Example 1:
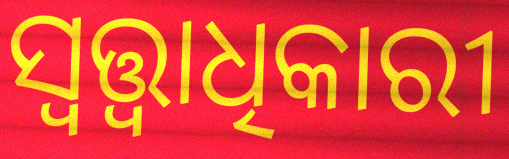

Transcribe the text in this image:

ସ୍ବତ୍ତ୍ବାଧିକାରୀ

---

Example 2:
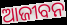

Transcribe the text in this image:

ଆଜୀବନ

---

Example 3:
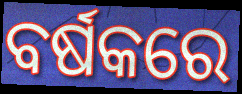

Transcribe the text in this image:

ବର୍ଷକରେ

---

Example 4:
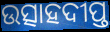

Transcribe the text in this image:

ଉତ୍ସାହଦୀପ୍ତ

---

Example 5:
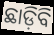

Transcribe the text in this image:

ଛାଡ଼ିବି